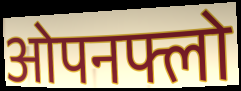
ओपनफ्लो